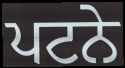
ਪਟਨੇ